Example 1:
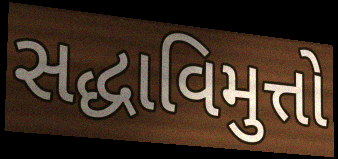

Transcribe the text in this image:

સદ્ધાવિમુત્તો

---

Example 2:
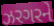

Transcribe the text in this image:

ઝરગરને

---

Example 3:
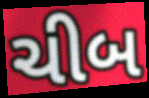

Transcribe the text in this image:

ચીબ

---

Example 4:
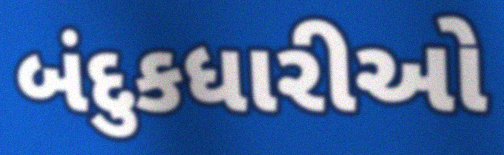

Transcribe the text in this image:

બંદુકધારીઓ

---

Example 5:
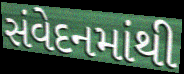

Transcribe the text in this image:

સંવેદનમાંથી